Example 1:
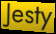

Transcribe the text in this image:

Jesty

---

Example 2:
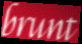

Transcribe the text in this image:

brunt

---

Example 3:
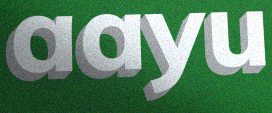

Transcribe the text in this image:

aayu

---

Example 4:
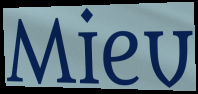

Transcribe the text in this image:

Mieu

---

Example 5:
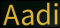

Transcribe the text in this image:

Aadi